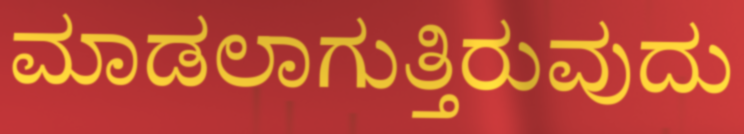
ಮಾಡಲಾಗುತ್ತಿರುವುದು